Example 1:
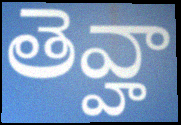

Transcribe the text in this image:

తెవ్హా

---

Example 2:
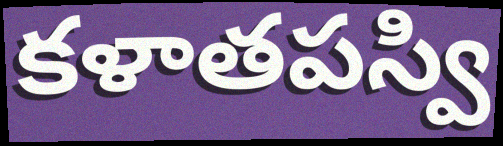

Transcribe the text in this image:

కళాతపస్వి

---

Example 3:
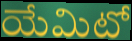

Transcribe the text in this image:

యేమిటో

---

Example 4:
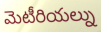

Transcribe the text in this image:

మెటీరియల్ను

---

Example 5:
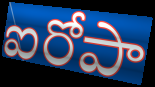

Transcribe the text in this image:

ఐరోపా